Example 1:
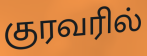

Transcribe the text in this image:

குரவரில்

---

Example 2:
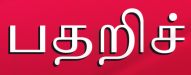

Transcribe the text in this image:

பதறிச்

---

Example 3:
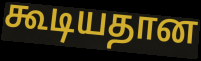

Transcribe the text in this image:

கூடியதான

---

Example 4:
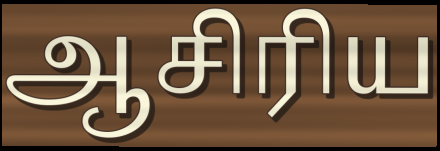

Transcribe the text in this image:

ஆசிரிய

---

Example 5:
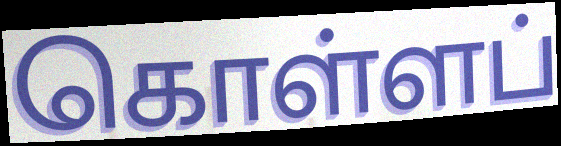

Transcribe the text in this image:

கொள்ளப்